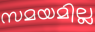
സമയമില്ല